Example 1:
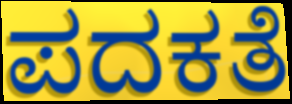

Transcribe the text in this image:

ಪದಕತೆ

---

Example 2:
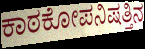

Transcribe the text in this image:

ಕಾಠಕೋಪನಿಷತ್ತಿನ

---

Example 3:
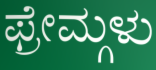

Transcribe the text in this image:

ಫ್ರೇಮ್ಗಳು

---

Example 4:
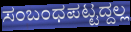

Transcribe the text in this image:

ಸಂಬಂಧಪಟ್ಟದ್ದಲ್ಲ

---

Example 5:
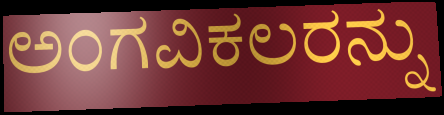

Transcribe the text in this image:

ಅಂಗವಿಕಲರನ್ನು